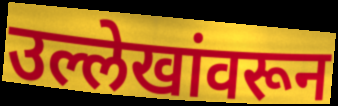
उल्लेखांवरून